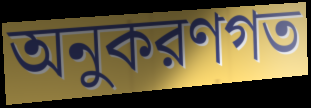
অনুকরণগত